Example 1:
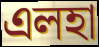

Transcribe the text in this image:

এলহা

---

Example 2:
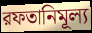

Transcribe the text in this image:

রফতানিমূল্য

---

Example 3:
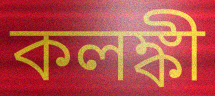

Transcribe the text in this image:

কলঙ্কী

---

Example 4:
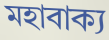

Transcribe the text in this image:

মহাবাক্য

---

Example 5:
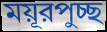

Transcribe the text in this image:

ময়ূরপুচ্ছ